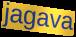
jagava